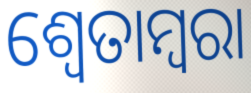
ଶ୍ୱେତାମ୍ବରା